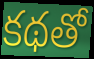
కథతో